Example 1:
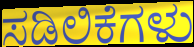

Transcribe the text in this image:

ಸಡಿಲಿಕೆಗಳು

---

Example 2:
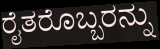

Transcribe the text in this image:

ರೈತರೊಬ್ಬರನ್ನು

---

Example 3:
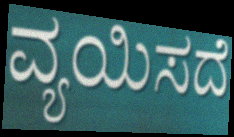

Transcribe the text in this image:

ವ್ಯಯಿಸದೆ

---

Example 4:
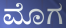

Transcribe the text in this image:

ಮೊಗ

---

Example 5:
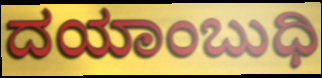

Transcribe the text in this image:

ದಯಾಂಬುಧಿ